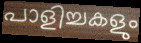
പാളിച്ചകളും